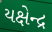
યક્ષેન્દ્ર